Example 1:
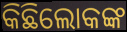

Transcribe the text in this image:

କିଛିଲୋକଙ୍କ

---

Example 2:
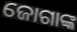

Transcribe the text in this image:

ଜୋଗାଙ୍କ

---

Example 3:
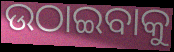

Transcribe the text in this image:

ଉଠାଇବାକୁ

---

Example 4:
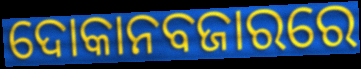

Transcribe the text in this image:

ଦୋକାନବଜାରରେ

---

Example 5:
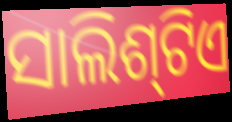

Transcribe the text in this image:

ସାଲିଶ୍‌ଟିଏ